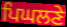
ਪਿਘਲਣੇ